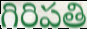
గిరిపతి